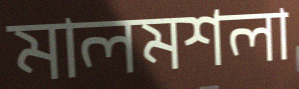
মালমশলা